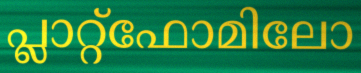
പ്ലാറ്റ്ഫോമിലോ